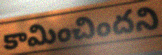
కామించిందని